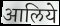
आलिये